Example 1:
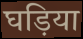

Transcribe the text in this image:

घड़िया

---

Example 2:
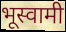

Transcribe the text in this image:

भूस्वामी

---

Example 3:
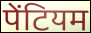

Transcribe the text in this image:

पेंटियम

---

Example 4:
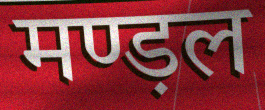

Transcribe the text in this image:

मण्ड़ल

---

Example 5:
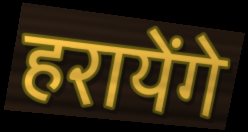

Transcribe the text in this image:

हरायेंगे